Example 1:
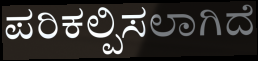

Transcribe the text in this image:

ಪರಿಕಲ್ಪಿಸಲಾಗಿದೆ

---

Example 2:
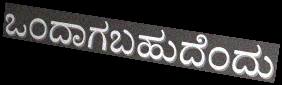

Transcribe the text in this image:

ಒಂದಾಗಬಹುದೆಂದು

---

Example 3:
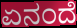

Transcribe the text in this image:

ಏನಂದೆ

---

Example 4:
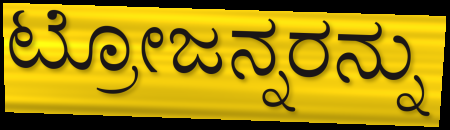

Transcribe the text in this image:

ಟ್ರೋಜನ್ನರನ್ನು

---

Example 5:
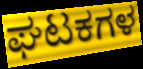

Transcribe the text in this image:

ಘಟಕಗಳ